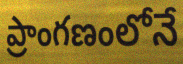
ప్రాంగణంలోనే